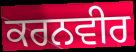
ਕਰਨਵੀਰ